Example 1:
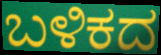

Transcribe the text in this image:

ಬಳಿಕದ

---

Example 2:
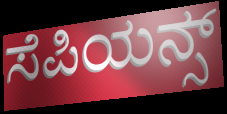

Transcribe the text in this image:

ಸೆಪಿಯನ್ಸ್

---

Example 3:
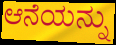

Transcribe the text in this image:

ಆನೆಯನ್ನು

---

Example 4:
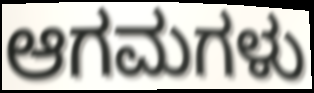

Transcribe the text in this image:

ಆಗಮಗಳು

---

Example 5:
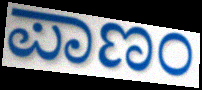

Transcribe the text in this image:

ಪಾಣಂ